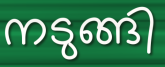
നടുങ്ങി